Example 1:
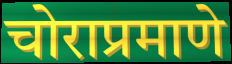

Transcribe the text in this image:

चोराप्रमाणे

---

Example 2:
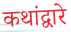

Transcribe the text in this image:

कथांद्वारे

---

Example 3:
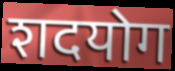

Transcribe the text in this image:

शदयोग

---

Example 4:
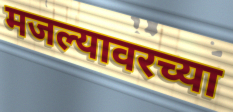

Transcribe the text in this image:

मजल्यावरच्या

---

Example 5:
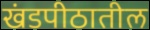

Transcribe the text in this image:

खंडपीठातील